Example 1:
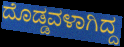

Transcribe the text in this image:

ದೊಡ್ಡವಳಾಗಿದ್ದ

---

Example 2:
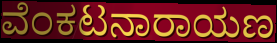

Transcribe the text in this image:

ವೆಂಕಟನಾರಾಯಣ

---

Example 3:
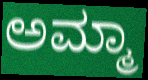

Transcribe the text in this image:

ಅಮ್ಮಾ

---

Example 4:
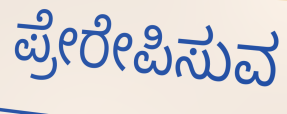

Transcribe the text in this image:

ಪ್ರೇರೇಪಿಸುವ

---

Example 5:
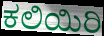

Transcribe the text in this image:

ಕಲಿಯಿರಿ